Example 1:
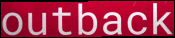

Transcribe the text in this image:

outback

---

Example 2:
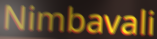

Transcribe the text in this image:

Nimbavali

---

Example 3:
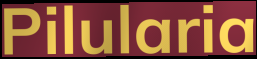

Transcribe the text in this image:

Pilularia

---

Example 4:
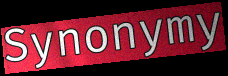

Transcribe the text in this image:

Synonymy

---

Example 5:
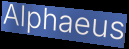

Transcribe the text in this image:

Alphaeus